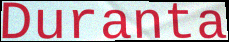
Duranta